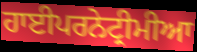
ਹਾਈਪਰਨੇਟ੍ਰੀਮੀਆ